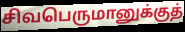
சிவபெருமானுக்குத்